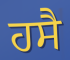
ਹਸੈ